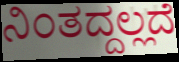
ನಿಂತದ್ದಲ್ಲದೆ